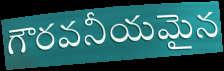
గౌరవనీయమైన